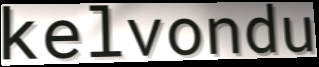
kelvondu